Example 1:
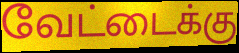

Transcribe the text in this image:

வேட்டைக்கு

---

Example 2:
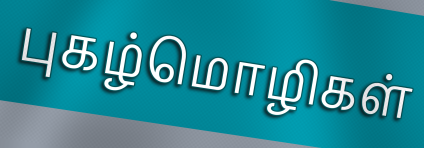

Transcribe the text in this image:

புகழ்மொழிகள்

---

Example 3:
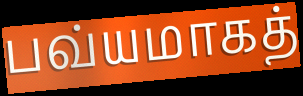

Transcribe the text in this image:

பவ்யமாகத்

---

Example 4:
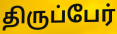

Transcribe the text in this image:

திருப்பேர்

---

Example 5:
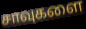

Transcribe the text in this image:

சாவுகளை